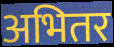
अभितर